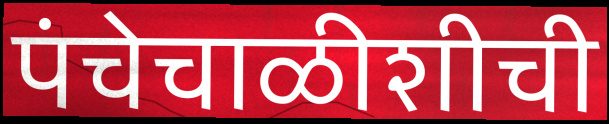
पंचेचाळीशीची